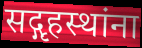
सद्गृहस्थांना